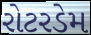
રોટરડેમ